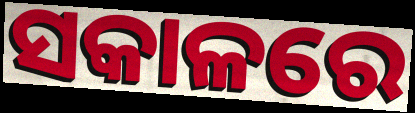
ସକାଳରେ